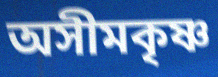
অসীমকৃষ্ণ